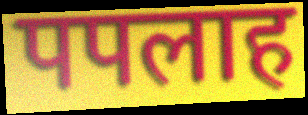
पपलाह